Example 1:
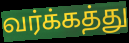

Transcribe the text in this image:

வர்க்கத்து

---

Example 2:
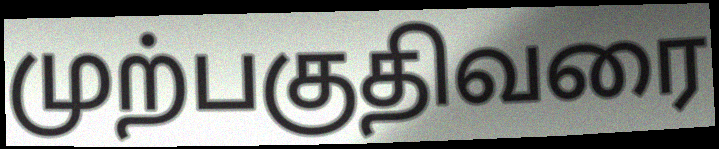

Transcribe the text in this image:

முற்பகுதிவரை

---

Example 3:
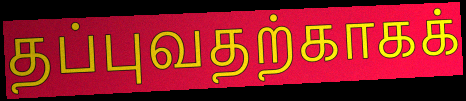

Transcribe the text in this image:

தப்புவதற்காகக்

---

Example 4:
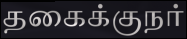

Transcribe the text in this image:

தகைக்குநர்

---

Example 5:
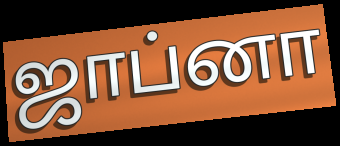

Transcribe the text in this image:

ஜாப்னா